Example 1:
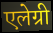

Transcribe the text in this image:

एलेग्री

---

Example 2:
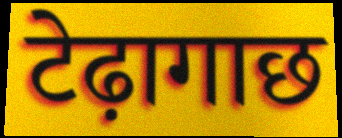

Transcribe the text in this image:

टेढ़ागाछ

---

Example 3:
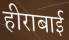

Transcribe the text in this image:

हीराबाई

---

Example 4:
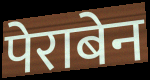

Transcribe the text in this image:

पेराबेन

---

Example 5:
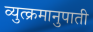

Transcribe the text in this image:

व्युत्क्रमानुपाती